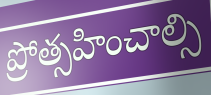
ప్రోత్సహించాల్సి